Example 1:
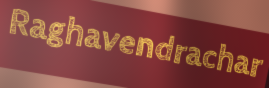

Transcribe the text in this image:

Raghavendrachar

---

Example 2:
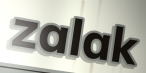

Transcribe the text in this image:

zalak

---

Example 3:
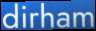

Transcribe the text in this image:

dirham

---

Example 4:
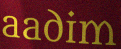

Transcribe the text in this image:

aadim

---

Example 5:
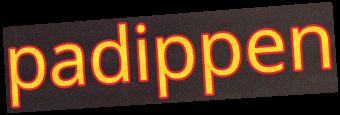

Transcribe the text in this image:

padippen